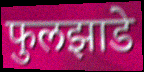
फुलझाडे